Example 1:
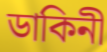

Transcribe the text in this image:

ডাকিনী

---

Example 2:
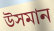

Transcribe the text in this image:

উসমান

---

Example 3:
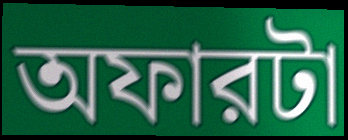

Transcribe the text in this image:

অফারটা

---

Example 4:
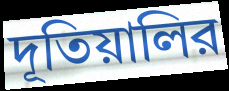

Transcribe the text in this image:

দূতিয়ালির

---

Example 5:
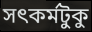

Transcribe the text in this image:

সৎকর্মটুকু